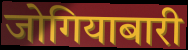
जोगियाबारी